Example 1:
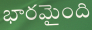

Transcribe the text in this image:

భారమైంది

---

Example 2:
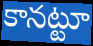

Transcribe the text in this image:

కానట్టూ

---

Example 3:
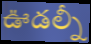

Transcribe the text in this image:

ఊడల్నీ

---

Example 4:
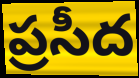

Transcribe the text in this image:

ప్రసీద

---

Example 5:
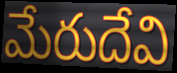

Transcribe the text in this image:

మేరుదేవి